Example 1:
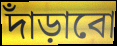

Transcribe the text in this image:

দাঁড়াবো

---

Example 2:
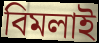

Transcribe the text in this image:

বিমলাই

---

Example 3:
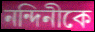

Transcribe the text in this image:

নন্দিনীকে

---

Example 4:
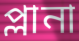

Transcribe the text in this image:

প্লানা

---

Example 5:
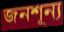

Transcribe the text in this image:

জনশূন্য